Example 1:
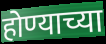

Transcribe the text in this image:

होण्‍याच्‍या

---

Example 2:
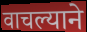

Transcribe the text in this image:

वाचल्याने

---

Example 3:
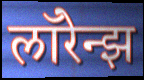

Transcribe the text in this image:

लॉरेन्झ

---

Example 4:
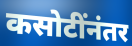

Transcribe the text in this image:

कसोटींनंतर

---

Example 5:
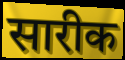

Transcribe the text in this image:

सारीक